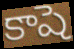
కాషె